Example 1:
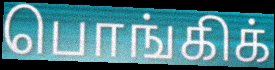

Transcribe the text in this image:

பொங்கிக்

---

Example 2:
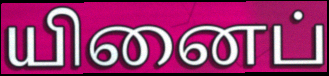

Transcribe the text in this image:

யினைப்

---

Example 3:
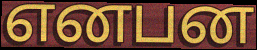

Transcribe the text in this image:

எனபன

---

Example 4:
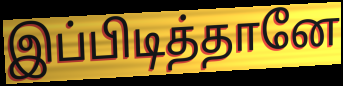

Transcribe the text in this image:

இப்பிடித்தானே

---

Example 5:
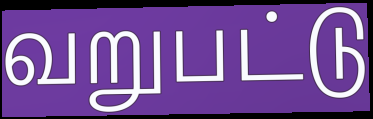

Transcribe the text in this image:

வறுபட்டு